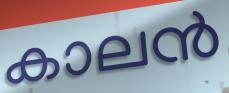
കാലൻ